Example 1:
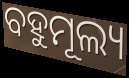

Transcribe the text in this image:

ବହୁମୂଲ୍ୟ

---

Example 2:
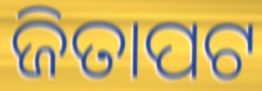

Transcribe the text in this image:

ଜିତାପଟ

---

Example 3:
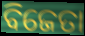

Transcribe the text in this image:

ବିଜେତା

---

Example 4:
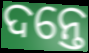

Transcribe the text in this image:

ଦନ୍ତେ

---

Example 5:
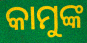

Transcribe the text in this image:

କାମୁଙ୍କ